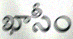
ఖాసీం